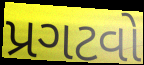
પ્રગટવો